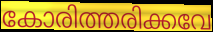
കോരിത്തരിക്കവേ